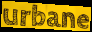
urbane